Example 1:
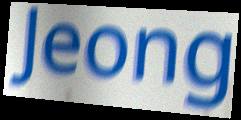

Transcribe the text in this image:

Jeong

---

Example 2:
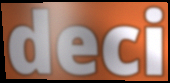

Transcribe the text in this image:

deci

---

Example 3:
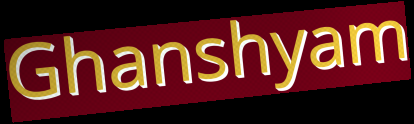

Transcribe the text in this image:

Ghanshyam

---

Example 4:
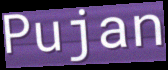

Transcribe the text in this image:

Pujan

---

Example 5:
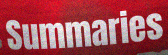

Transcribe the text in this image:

Summaries